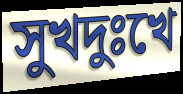
সুখদুঃখে